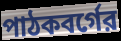
পাঠকবর্গের